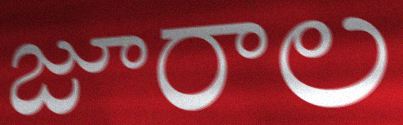
జూరాల